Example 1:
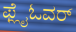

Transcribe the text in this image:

ಫ್ಲೈಓವರ್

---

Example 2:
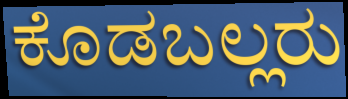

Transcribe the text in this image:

ಕೊಡಬಲ್ಲರು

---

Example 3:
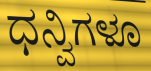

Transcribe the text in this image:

ಧನ್ವಿಗಳೂ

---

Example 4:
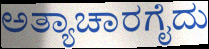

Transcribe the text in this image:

ಅತ್ಯಾಚಾರಗೈದು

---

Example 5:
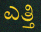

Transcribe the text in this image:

ಎತ್ತಿ